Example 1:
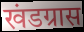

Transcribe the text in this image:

खंडग्रास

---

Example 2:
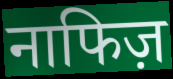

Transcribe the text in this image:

नाफिज़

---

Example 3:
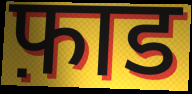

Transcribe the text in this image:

फ़ाड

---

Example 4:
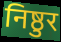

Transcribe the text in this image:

निष्ठुर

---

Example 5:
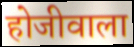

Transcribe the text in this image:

होजीवाला